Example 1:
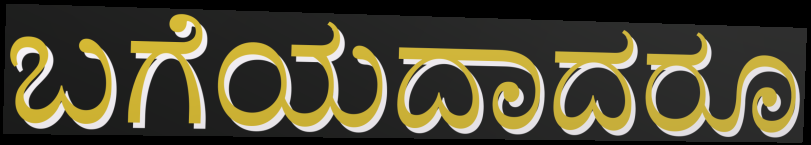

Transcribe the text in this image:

ಬಗೆಯದಾದರೂ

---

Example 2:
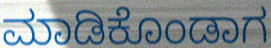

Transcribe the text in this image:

ಮಾಡಿಕೊಂಡಾಗ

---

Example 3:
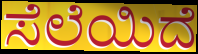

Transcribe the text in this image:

ಸೆಲೆಯಿದೆ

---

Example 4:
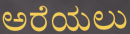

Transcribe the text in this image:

ಅರೆಯಲು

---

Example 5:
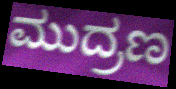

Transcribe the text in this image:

ಮುದ್ರಣ